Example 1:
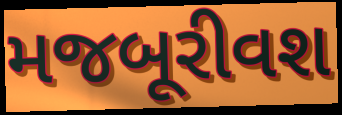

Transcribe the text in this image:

મજબૂરીવશ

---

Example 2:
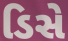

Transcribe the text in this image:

ડિસે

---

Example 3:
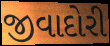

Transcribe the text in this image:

જીવાદોરી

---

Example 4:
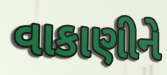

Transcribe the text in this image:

વાકાણીને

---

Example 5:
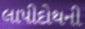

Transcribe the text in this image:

લાપીદોથની